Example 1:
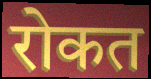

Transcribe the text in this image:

रोकत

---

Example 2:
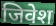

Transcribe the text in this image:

जिवेश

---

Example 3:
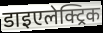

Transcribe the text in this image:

डाइएलेक्ट्रिक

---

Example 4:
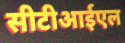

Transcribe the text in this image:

सीटीआईएल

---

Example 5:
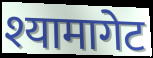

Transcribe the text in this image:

श्यामागेट